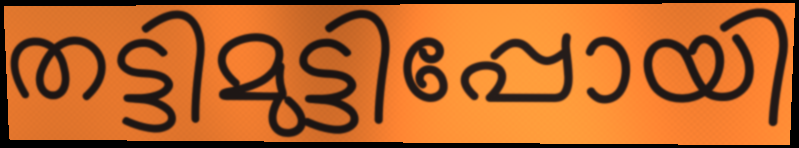
തട്ടിമുട്ടിപ്പോയി